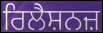
ਰਿਲੈਸ਼ਨਜ਼